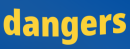
dangers